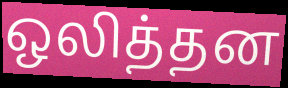
ஒலித்தன